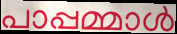
പാപ്പമ്മാൾ